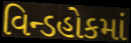
વિન્ડહોકમાં